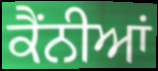
ਕੈਂਨੀਆਂ